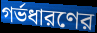
গর্ভধারণের